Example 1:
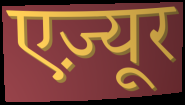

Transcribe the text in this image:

एज़्यूर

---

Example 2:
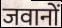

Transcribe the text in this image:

जवानों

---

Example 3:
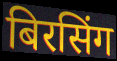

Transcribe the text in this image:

बिरसिंग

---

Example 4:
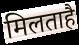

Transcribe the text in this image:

मिलताहै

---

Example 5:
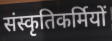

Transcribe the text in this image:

संस्कृतिकर्मियों